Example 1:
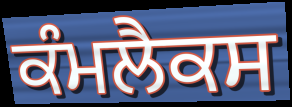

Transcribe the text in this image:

ਕੰਮਲੈਕਸ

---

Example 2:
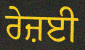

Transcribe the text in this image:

ਰੇਜ਼ਈ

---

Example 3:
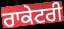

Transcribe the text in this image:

ਰਾਕੇਟਰੀ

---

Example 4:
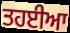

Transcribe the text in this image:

ਤਹਈਆ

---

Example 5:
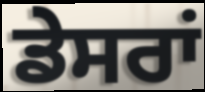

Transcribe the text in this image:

ਡੇਸਰਾਂ